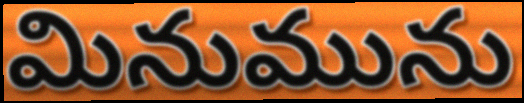
మినుమును